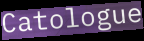
Catologue